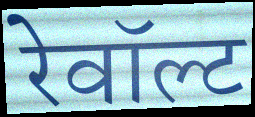
रेवॉल्ट